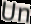
Un